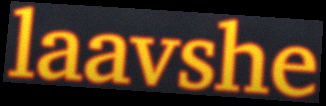
laavshe